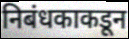
निबंधकाकडून